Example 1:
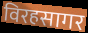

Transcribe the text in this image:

विरहसागर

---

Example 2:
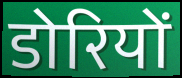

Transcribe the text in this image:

डोरियों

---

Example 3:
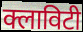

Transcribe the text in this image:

क्लाविटी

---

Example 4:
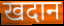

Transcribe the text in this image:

खदान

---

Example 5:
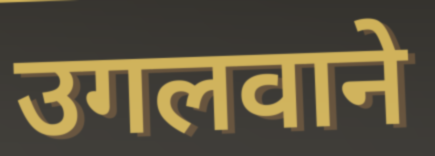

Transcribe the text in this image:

उगलवाने